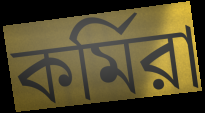
কর্মিরা